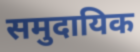
समुदायिक